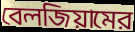
বেলজিয়ামের